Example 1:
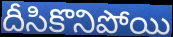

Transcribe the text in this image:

దీసికొనిపోయి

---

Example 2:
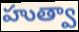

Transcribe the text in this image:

హుత్వా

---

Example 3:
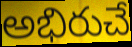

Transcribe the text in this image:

అభిరుచే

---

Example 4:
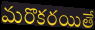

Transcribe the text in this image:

మరొకరయితే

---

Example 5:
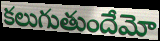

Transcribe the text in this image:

కలుగుతుందేమో